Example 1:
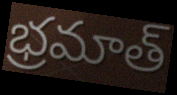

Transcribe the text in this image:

భ్రమాత్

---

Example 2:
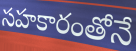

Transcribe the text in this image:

సహకారంతోనే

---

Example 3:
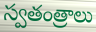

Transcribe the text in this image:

స్వతంత్రాలు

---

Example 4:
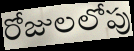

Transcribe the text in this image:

రోజులలోపు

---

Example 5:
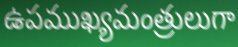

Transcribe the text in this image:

ఉపముఖ్యమంత్రులుగా